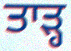
ਤਾੜ੍ਹ